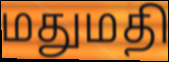
மதுமதி